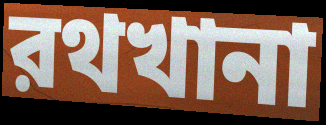
রথখানা